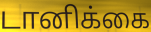
டானிக்கை